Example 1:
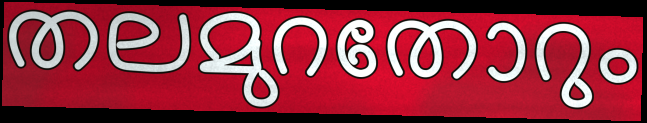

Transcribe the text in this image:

തലമുറതോറും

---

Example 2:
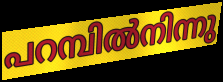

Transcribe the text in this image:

പറമ്പിൽനിന്നു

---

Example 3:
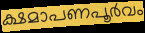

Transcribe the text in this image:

ക്ഷമാപണപൂർവം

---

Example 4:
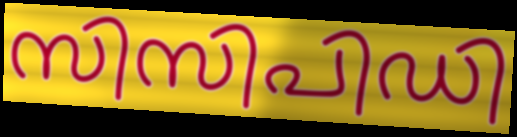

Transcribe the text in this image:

സിസിപിഡി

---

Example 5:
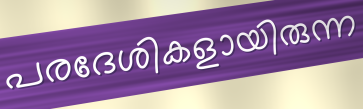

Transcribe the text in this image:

പരദേശികളായിരുന്ന